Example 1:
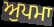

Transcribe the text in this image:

ਅੁਪਮਾ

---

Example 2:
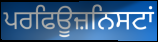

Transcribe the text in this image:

ਪਰਫਿਊਜ਼ਨਿਸਟਾਂ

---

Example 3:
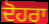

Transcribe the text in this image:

ਦੋਹਰਾ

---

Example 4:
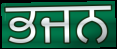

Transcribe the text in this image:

ਭਜਨ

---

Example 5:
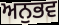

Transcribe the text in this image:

ਅਨੁਭਵ